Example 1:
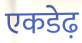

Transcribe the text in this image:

एकडेढ़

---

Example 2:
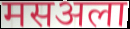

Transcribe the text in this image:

मसअला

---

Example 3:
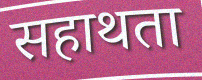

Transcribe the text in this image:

सहाथता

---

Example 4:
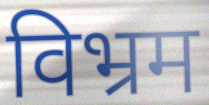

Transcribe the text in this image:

विभ्रम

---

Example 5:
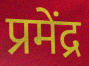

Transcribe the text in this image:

प्रमेंद्र